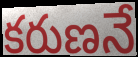
కరుణనే